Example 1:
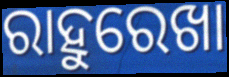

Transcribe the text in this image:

ରାହୁରେଖା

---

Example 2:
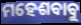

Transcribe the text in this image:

ମହେଶବାବୁ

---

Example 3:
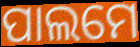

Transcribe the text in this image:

ପାଲମେ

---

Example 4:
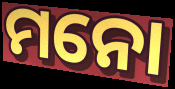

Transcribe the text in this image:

ମନୋ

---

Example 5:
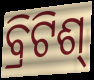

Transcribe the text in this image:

ବ୍ରିଟିଶ୍